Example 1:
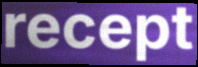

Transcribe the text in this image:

recept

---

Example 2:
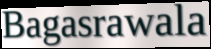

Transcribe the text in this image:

Bagasrawala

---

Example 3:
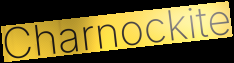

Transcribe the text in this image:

Charnockite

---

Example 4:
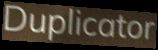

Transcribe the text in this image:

Duplicator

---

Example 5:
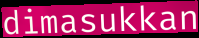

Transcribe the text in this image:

dimasukkan